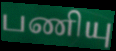
பணியு